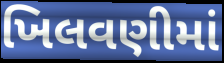
ખિલવણીમાં